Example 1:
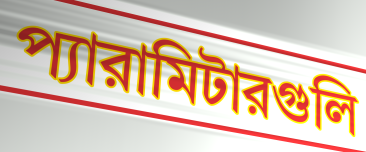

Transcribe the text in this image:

প্যারামিটারগুলি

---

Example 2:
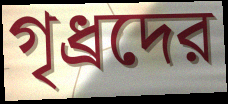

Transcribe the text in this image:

গৃধ্রদের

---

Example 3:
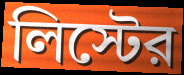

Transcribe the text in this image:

লিস্টের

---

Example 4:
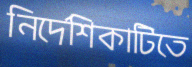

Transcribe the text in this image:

নির্দেশিকাটিতে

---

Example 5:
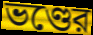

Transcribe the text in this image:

ভণ্ডের